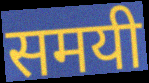
समयी